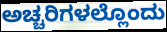
ಅಚ್ಚರಿಗಳಲ್ಲೊಂದು